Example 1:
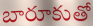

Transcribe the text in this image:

బారూకుతో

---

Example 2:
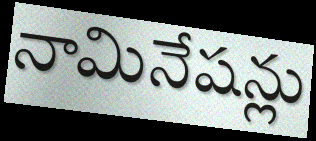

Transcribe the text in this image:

నామినేషన్లు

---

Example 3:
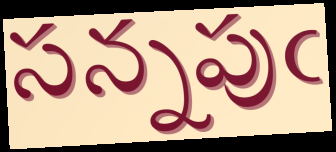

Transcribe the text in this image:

సన్నపుఁ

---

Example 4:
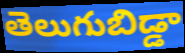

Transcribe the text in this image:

తెలుగుబిడ్డా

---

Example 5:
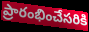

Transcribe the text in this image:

ప్రారంభించేసరికి